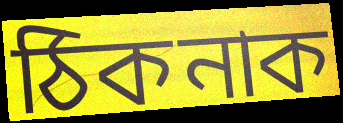
ঠিকনাক